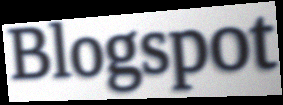
Blogspot